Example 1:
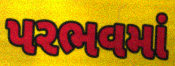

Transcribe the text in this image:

પરભવમાં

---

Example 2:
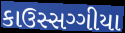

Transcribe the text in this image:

કાઉસ્સગ્ગીયા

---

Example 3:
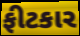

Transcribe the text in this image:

ફીટકાર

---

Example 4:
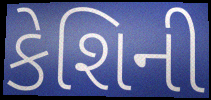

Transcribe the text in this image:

કેશિની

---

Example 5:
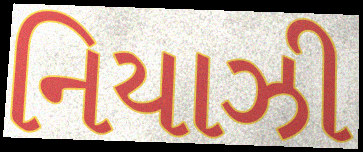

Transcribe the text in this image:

નિયાઝી